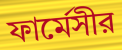
ফার্মেসীর